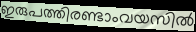
ഇരുപത്തിരണ്ടാംവയസിൽ